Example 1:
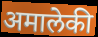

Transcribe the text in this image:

अमालेकी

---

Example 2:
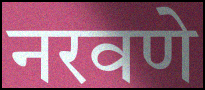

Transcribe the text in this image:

नरवणे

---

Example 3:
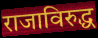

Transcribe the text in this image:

राजाविरुद्ध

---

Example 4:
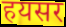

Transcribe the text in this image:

हयसर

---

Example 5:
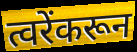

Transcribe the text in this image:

त्वरेंकरून